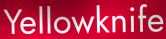
Yellowknife